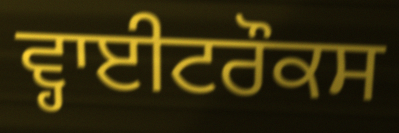
ਵ੍ਹਾਈਟਰੌਕਸ